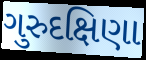
ગુરુદક્ષિણા